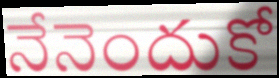
నేనెందుకో